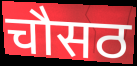
चौसठ